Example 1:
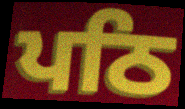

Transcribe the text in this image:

ਪਠਿ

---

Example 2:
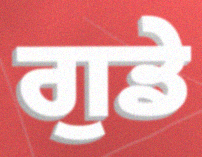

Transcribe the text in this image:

ਗੁਡੇ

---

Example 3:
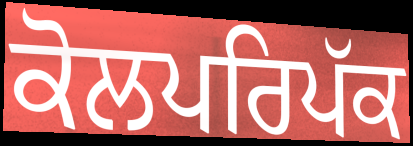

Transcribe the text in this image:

ਕੋਲਪਰਿਪੱਕ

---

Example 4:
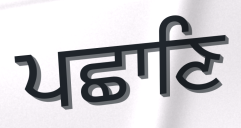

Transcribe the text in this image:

ਪਛਾਣਿ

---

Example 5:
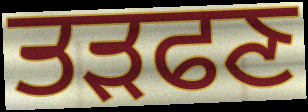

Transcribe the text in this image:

ਤੜਫਣ